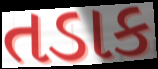
તડાક